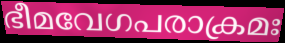
ഭീമവേഗപരാക്രമഃ